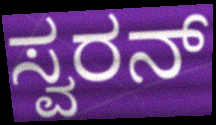
ಸ್ವರನ್